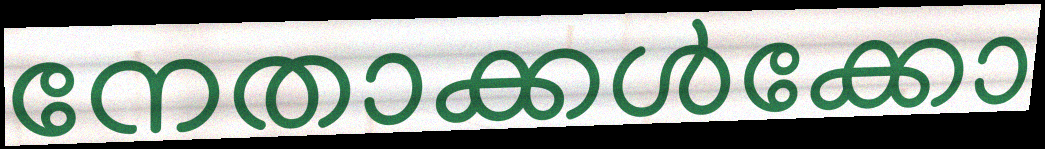
നേതാക്കൾക്കോ